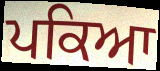
ਪਕਿਆ